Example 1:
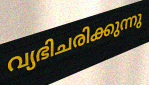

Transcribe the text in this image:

വ്യഭിചരിക്കുന്നു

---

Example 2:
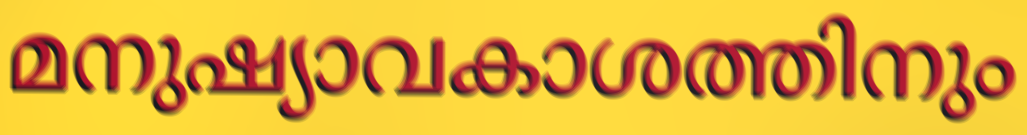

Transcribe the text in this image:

മനുഷ്യാവകാശത്തിനും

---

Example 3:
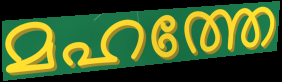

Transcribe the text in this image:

മഹത്തേ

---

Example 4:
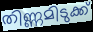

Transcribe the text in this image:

തിണ്ണമിടുക്ക്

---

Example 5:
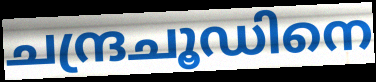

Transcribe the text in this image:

ചന്ദ്രചൂഡിനെ